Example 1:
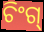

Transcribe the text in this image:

ଚିଂଗ୍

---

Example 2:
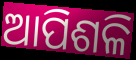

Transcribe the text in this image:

ଆପିଶଳି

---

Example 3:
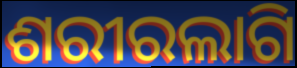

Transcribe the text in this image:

ଶରୀରଲାଗି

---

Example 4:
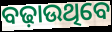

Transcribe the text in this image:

ବଢ଼ାଉଥିବେ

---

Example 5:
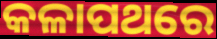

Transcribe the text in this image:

କଳାପଥରେ